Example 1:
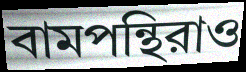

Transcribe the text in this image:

বামপন্থিরাও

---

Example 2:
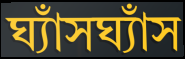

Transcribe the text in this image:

ঘ্যাঁসঘ্যাঁস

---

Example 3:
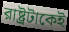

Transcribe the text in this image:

রাষ্ট্রটাকেই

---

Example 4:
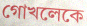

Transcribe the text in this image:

গোখলেকে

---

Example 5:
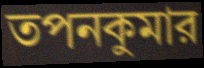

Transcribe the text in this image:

তপনকুমার